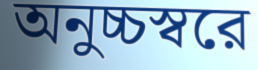
অনুচ্চস্বরে